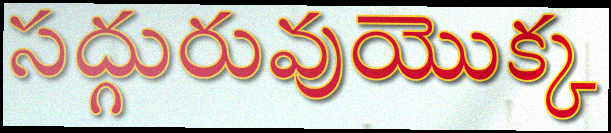
సద్గురువుయొక్క